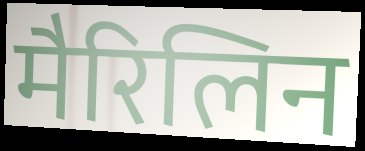
मैरिलिन